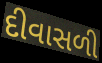
દીવાસળી